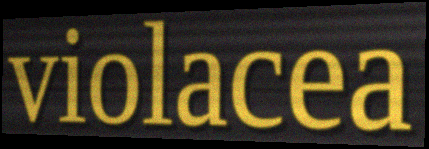
violacea